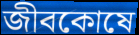
জীবকোষে